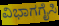
ವಿಭಾಗಗೈಸಿ